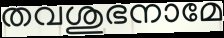
തവശുഭനാമേ